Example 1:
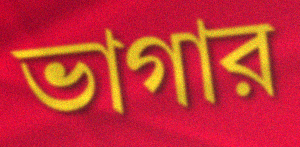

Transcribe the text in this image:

ভাগার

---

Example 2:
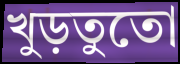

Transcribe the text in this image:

খুড়তুতো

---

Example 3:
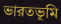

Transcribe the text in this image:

ভারতভূমি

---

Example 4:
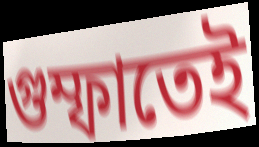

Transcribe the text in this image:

গুম্ফাতেই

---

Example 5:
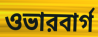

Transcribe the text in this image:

ওভারবার্গ